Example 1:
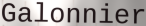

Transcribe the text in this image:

Galonnier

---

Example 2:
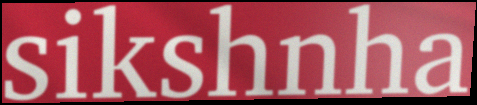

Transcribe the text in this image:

sikshnha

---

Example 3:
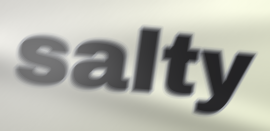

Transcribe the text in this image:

salty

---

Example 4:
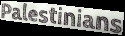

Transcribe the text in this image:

Palestinians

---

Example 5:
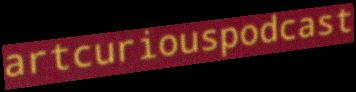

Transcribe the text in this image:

artcuriouspodcast